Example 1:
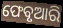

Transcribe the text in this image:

ଫେବୃଆରି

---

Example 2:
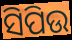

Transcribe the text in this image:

ସିପିଉ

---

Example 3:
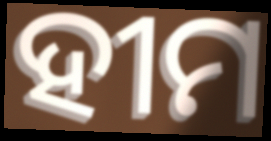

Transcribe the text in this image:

ହୀମ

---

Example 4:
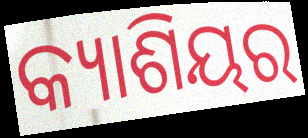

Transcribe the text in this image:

କ୍ୟାଶିୟର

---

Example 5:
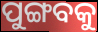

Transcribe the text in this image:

ପୁଙ୍ଗବକୁ